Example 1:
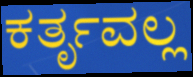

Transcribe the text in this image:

ಕರ್ತೃವಲ್ಲ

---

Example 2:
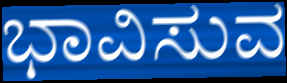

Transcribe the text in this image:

ಭಾವಿಸುವ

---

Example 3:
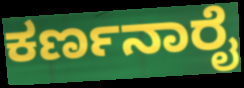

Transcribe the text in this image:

ಕರ್ಣನಾರೈ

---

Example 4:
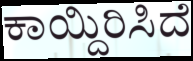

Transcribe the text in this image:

ಕಾಯ್ದಿರಿಸಿದೆ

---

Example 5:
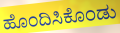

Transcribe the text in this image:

ಹೊಂದಿಸಿಕೊಂಡು